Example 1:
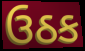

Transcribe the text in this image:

ઉઠક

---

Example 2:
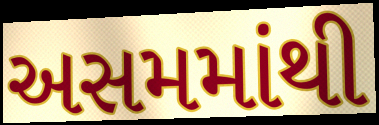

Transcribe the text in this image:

અસમમાંથી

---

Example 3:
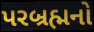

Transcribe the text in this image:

પરબ્રહ્મનો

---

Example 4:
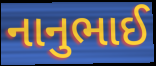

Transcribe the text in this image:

નાનુભાઈ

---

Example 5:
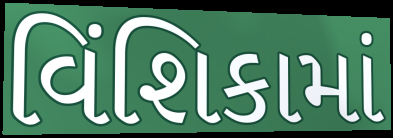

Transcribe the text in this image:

વિંશિકામાં